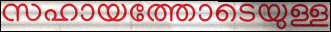
സഹായത്തോടെയുള്ള